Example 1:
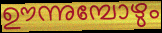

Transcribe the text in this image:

ഊന്നുമ്പോഴും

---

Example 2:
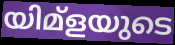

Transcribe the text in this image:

യിമ്ളയുടെ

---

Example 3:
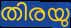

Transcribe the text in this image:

തിരയു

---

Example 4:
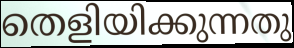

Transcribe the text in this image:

തെളിയിക്കുന്നതു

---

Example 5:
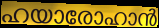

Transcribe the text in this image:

ഹയാരോഹാൻ